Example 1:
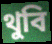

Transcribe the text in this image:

থুবি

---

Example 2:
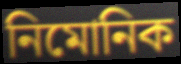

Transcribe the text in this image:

নিমোনিক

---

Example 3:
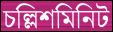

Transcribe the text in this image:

চল্লিশমিনিট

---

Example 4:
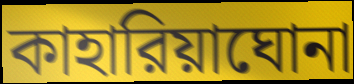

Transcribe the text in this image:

কাহারিয়াঘোনা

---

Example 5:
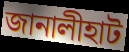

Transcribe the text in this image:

জানালীহাট